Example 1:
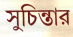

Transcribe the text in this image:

সুচিন্তার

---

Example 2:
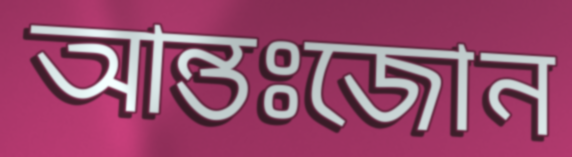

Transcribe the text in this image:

আন্তঃজোন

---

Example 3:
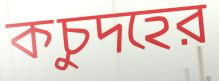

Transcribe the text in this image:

কচুদহের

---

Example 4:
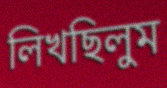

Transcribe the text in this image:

লিখছিলুম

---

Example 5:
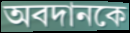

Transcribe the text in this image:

অবদানকে